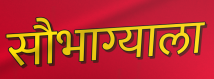
सौभाग्याला